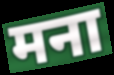
मना